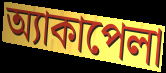
অ্যাকাপেলা